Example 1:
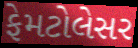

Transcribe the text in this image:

ફેમટોલેસર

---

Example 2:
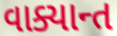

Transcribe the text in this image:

વાક્યાન્ત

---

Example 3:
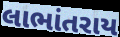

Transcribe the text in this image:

લાભાંતરાય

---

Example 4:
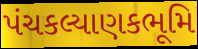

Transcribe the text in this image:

પંચકલ્યાણકભૂમિ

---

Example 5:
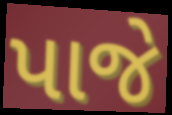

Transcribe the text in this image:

પાજે